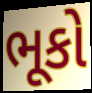
ભૂકો